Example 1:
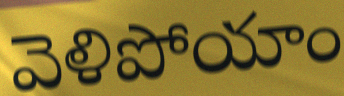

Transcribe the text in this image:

వెళిపోయాం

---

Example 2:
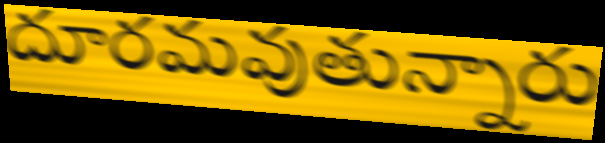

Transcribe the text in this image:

దూరమవుతున్నారు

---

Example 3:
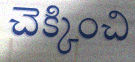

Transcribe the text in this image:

చెక్కించి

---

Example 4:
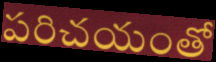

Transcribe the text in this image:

పరిచయంతో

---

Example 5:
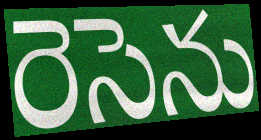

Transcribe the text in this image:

రెసెను